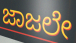
ಜಾಜಲೇ